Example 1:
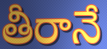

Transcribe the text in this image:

తీరానే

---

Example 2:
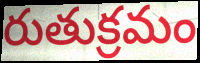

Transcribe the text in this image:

రుతుక్రమం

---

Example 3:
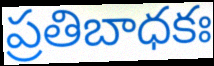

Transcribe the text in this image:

ప్రతిబాధకః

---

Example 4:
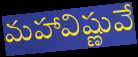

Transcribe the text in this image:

మహావిష్ణువే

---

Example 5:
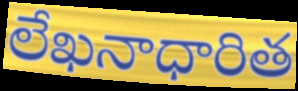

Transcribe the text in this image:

లేఖనాధారిత